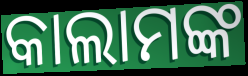
କାଲାମଙ୍କ